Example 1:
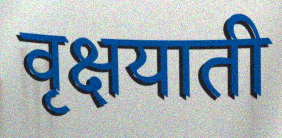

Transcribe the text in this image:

वृक्षयाती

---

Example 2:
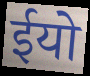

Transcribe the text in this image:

ईयो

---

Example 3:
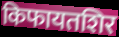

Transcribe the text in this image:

किफायतशिर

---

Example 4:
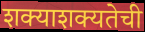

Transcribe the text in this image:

शक्याशक्यतेची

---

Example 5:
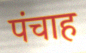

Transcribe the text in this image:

पंचाह